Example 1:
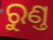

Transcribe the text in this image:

ରୁଣ୍ତ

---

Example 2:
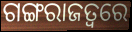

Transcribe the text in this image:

ଗଙ୍ଗରାଜତ୍ୱରେ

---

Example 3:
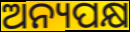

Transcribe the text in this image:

ଅନ୍ୟପକ୍ଷ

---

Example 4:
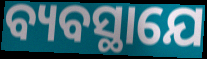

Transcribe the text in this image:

ବ୍ୟବସ୍ଥାଯେ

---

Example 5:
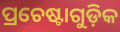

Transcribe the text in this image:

ପ୍ରଚେଷ୍ଟାଗୁଡ଼ିକ